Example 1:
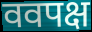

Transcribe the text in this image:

ववपक्ष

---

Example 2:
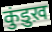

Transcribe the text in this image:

कुंड़ुख़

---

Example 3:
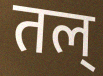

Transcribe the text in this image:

तल्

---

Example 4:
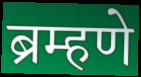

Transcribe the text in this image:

ब्रम्हणे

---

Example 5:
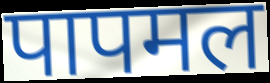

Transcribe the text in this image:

पापमल